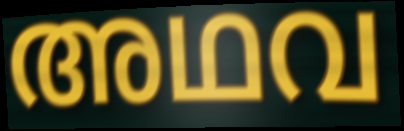
അഥവ